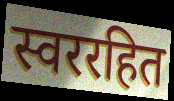
स्वररहित